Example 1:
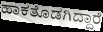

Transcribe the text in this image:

ಹಾಕತೊಡಗಿದ್ದಾರೆ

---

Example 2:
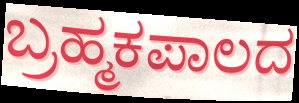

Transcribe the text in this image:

ಬ್ರಹ್ಮಕಪಾಲದ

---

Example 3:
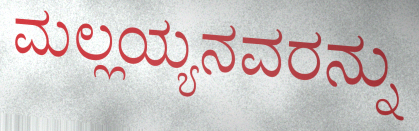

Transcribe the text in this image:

ಮಲ್ಲಯ್ಯನವರನ್ನು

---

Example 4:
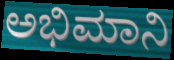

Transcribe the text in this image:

ಅಭಿಮಾನಿ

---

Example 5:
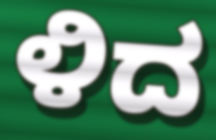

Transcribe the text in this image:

ಳಿದ